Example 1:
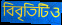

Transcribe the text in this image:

বিবৃতিটিও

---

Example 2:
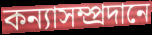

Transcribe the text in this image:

কন্যাসম্প্রদানে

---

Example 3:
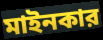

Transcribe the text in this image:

মাইনকার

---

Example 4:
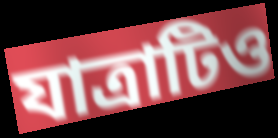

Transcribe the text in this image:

যাত্রাটিও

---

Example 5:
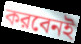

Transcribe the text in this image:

করবেনই